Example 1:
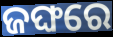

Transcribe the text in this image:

ଜଙ୍ଘରେ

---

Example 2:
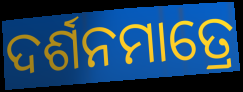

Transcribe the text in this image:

ଦର୍ଶନମାତ୍ରେ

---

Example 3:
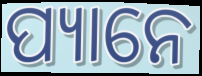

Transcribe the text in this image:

ପ୍ୟାନେ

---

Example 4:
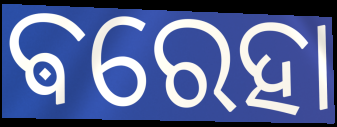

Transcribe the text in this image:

ଵରେହା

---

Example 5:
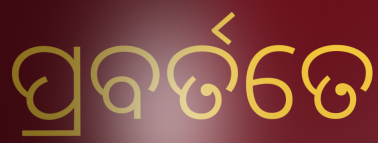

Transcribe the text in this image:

ପ୍ରବର୍ତତେ